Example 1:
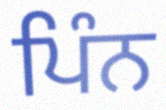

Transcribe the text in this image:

ਪਿੰਨ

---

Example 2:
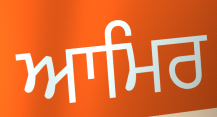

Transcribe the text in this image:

ਆਮਿਰ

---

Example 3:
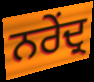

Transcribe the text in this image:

ਨਰੇਂਦ੍ਰ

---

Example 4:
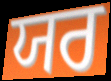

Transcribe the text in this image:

ਯਰ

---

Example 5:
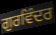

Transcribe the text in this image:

ਗੁਰਵਿੰਦਰ